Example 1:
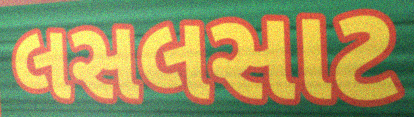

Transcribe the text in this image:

લસલસાટ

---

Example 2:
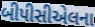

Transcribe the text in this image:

બીપીસીએલના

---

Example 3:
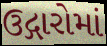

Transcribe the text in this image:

ઉદ્ગારોમાં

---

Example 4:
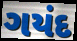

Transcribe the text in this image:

ગયંદ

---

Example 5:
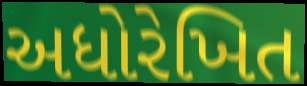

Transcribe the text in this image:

અધોરેખિત